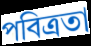
পবিত্রতা